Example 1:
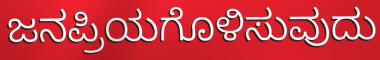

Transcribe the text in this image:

ಜನಪ್ರಿಯಗೊಳಿಸುವುದು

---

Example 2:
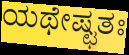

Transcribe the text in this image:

ಯಥೇಷ್ಟತಃ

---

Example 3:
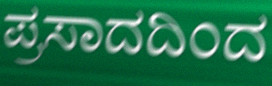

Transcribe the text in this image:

ಪ್ರಸಾದದಿಂದ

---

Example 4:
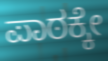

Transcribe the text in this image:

ಪಾಠಕ್ಕೇ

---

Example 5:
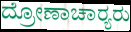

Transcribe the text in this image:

ದ್ರೋಣಾಚಾರ‍್ಯರು